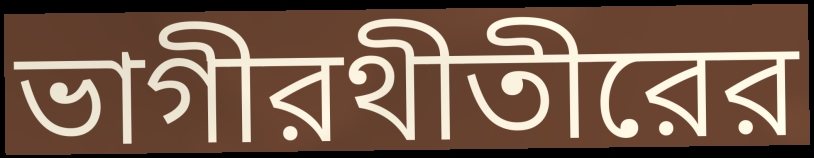
ভাগীরথীতীরের